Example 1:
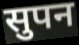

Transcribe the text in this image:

सुपन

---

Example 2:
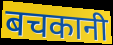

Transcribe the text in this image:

बचकानी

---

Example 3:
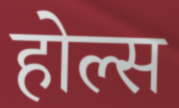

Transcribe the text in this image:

होल्स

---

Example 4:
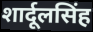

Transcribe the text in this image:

शार्दूलसिंह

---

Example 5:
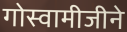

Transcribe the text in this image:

गोस्वामीजीने